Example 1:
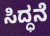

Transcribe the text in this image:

ಸಿದ್ಧನೆ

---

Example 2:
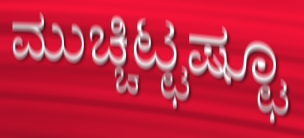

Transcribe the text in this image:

ಮುಚ್ಚಿಟ್ಟಷ್ಟೂ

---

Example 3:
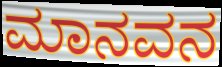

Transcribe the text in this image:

ಮಾನವನ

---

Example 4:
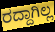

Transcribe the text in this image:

ರದ್ದಾಗಿಲ್ಲ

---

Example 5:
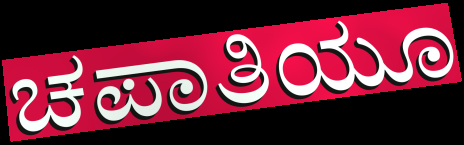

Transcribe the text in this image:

ಚಪಾತಿಯೂ